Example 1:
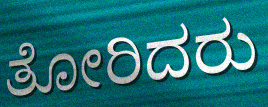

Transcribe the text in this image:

ತೋರಿದರು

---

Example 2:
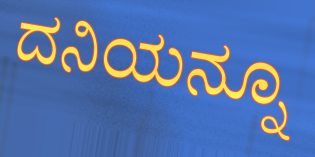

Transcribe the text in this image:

ದನಿಯನ್ನೂ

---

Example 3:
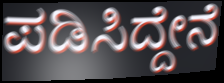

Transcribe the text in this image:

ಪಡಿಸಿದ್ದೇನೆ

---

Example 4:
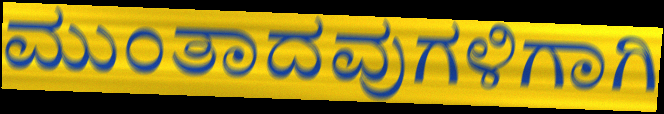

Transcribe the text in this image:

ಮುಂತಾದವುಗಳಿಗಾಗಿ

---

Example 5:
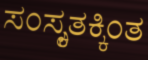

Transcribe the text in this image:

ಸಂಸ್ಕೃತಕ್ಕಿಂತ